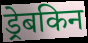
ड्रेबकिन